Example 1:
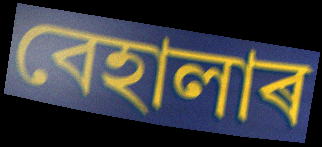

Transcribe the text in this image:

বেহালাৰ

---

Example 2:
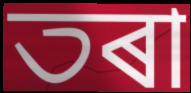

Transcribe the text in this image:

তৰা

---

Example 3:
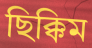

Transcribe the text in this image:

ছিক্কিম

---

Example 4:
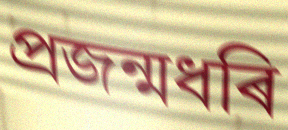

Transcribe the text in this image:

প্ৰজন্মধৰি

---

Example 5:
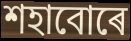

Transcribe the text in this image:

শহাবোৰে